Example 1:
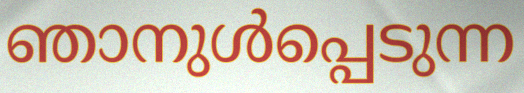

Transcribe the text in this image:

ഞാനുൾപ്പെടുന്ന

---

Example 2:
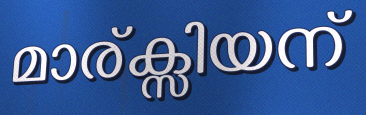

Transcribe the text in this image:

മാര്ക്സിയന്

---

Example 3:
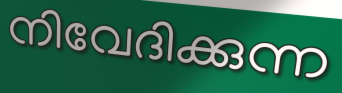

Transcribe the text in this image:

നിവേദിക്കുന്ന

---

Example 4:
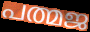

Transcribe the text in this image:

പത്മജ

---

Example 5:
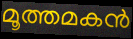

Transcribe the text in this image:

മൂത്തമകൻ